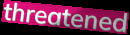
threatened